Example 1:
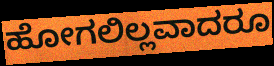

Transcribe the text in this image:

ಹೋಗಲಿಲ್ಲವಾದರೂ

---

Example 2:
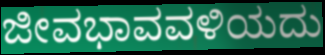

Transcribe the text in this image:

ಜೀವಭಾವವಳಿಯದು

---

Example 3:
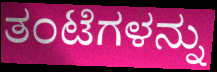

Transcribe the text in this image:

ತಂಟೆಗಳನ್ನು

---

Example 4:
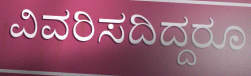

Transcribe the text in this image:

ವಿವರಿಸದಿದ್ದರೂ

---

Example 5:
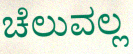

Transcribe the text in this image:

ಚೆಲುವಲ್ಲ